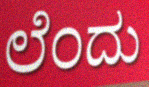
ಲೆಂದು